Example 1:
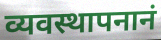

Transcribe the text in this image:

व्यवस्थापनानं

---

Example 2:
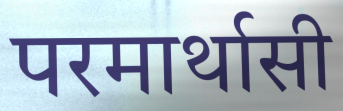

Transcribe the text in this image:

परमार्थासी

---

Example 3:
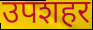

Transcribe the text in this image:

उपशहर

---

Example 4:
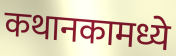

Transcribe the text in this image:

कथानकामध्ये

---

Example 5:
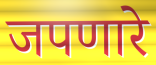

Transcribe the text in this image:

जपणारे